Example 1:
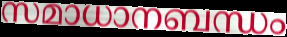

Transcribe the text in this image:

സമാധാനബന്ധം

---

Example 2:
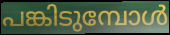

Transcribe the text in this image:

പങ്കിടുമ്പോൾ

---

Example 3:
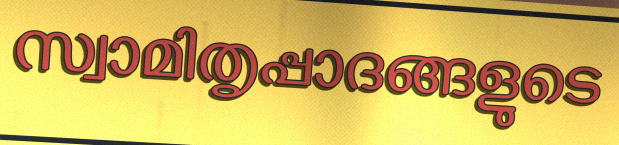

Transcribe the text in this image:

സ്വാമിതൃപ്പാദങ്ങളുടെ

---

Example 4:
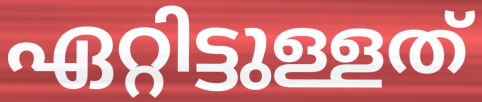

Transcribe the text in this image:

ഏറ്റിട്ടുള്ളത്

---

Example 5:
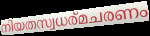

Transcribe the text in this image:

നിയതസ്വധര്മചരണം